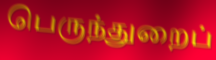
பெருந்துறைப்